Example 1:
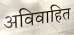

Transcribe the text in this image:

अविवाहित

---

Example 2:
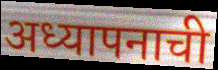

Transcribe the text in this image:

अध्यापनाची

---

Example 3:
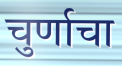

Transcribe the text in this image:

चुर्णाचा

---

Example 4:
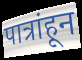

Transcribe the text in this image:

पात्रांहून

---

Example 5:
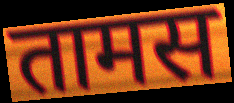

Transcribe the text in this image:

तामस